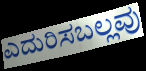
ಎದುರಿಸಬಲ್ಲವು